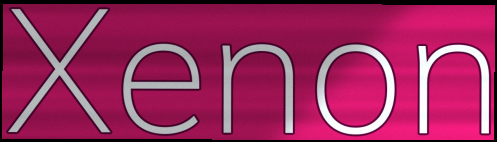
Xenon